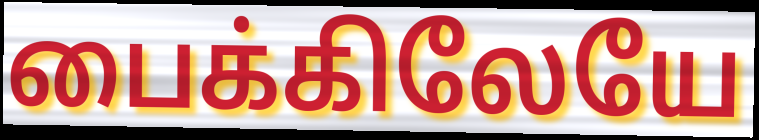
பைக்கிலேயே